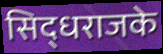
सिद्धराजके